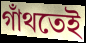
গাঁথতেই